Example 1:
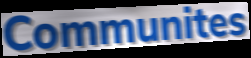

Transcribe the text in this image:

Communites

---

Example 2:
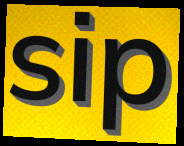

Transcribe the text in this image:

sip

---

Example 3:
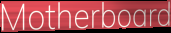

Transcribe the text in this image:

Motherboard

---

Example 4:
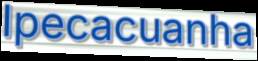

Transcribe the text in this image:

Ipecacuanha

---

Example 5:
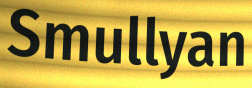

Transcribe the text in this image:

Smullyan